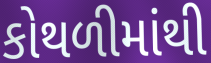
કોથળીમાંથી